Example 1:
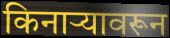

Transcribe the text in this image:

किनाऱ्यावरून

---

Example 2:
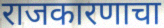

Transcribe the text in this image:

राजकारणाचा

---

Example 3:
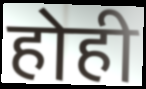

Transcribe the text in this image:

होही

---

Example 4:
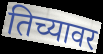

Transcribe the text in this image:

तिच्यावर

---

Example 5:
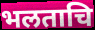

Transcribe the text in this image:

भलताचि